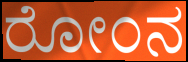
ರೋಂನ